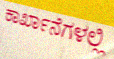
ಕಾರ್ಖಾನೆಗಳಲ್ಲಿ